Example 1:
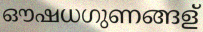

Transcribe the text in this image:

ഔഷധഗുണങ്ങള്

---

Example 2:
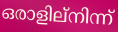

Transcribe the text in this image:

ഒരാളില്നിന്ന്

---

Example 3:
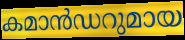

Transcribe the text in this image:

കമാൻഡറുമായ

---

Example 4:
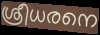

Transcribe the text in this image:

ശ്രീധരനെ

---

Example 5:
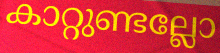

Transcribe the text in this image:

കാറ്റുണ്ടല്ലോ